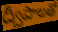
ద్వీపాలతో